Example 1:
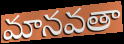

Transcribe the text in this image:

మానవతా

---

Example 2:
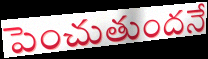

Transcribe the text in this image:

పెంచుతుందనే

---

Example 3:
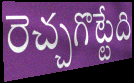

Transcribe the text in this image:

రెచ్చగొట్టేది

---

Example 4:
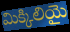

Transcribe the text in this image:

మిక్కిలియై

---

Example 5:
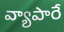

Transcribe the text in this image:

వ్యాపారే